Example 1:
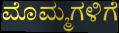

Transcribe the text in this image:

ಮೊಮ್ಮಗಳಿಗೆ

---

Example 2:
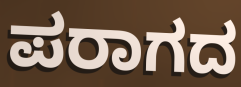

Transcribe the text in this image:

ಪರಾಗದ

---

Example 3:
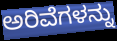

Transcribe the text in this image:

ಅರಿವೆಗಳನ್ನು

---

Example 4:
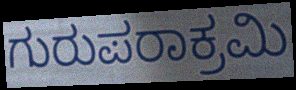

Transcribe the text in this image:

ಗುರುಪರಾಕ್ರಮಿ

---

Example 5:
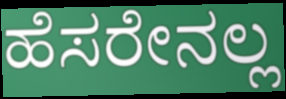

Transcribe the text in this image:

ಹೆಸರೇನಲ್ಲ